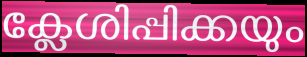
ക്ലേശിപ്പിക്കയും